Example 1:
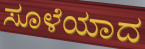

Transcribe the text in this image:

ಸೂಳೆಯಾದ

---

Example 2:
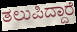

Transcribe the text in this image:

ತಲುಪಿದ್ದಾರೆ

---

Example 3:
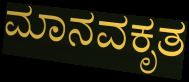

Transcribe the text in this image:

ಮಾನವಕೃತ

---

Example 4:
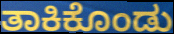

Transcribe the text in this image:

ತಾಕಿಕೊಂಡು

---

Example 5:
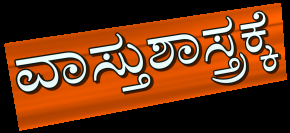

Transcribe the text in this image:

ವಾಸ್ತುಶಾಸ್ತ್ರಕ್ಕೆ